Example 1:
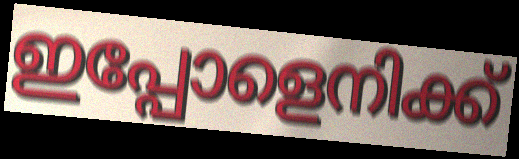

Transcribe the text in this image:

ഇപ്പോളെനിക്ക്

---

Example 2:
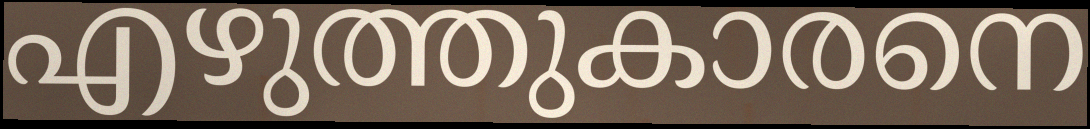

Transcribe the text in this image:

എഴുത്തുകാരനെ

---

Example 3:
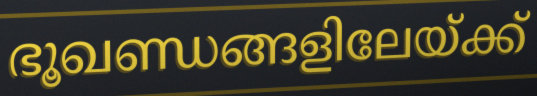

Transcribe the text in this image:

ഭൂഖണ്ഡങ്ങളിലേയ്ക്ക്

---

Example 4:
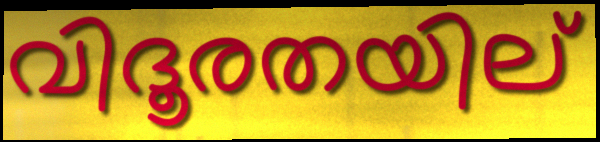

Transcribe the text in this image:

വിദൂരതയില്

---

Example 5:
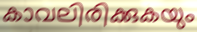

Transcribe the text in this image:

കാവലിരിക്കുകയും